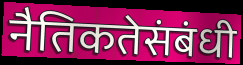
नैतिकतेसंबंधी